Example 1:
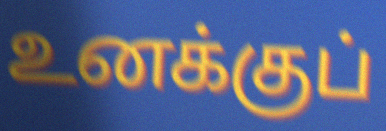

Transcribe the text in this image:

உனக்குப்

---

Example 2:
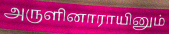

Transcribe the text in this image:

அருளினாராயினும்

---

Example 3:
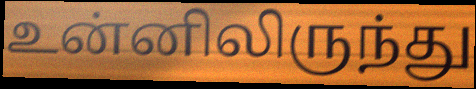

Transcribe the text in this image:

உன்னிலிருந்து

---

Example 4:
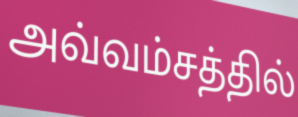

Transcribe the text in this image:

அவ்வம்சத்தில்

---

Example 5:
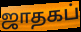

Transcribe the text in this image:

ஜாதகப்